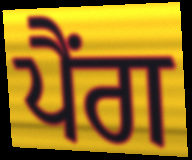
ਪੈਂਗ